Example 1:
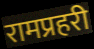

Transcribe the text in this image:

रामप्रहरी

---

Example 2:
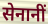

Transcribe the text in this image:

सेनानीं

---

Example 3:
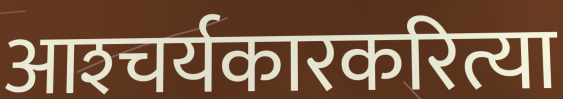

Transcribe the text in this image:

आश्‍चर्यकारकरित्या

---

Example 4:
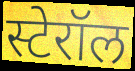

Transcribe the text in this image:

स्टेरॉल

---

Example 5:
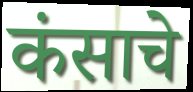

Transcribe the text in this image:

कंसाचे